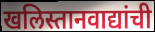
खलिस्तानवाद्यांची